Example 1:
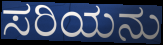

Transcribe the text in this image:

ಸರಿಯನು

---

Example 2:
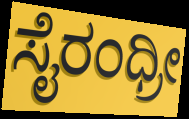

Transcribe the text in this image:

ಸೈರಂಧ್ರೀ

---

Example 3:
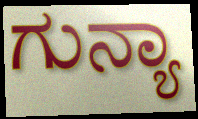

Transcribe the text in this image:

ಗುನ್ಯಾ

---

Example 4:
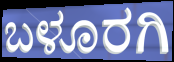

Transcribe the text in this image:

ಬಳೂರಗಿ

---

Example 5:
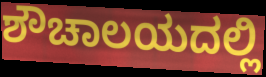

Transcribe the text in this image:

ಶೌಚಾಲಯದಲ್ಲಿ